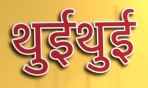
थुईथुई